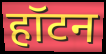
हॉटन